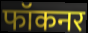
फॉकनर